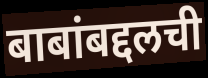
बाबांबद्दलची